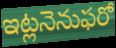
ఇట్లనెనుఫరో